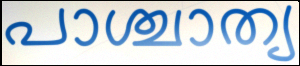
പാശ്ചാത്യ